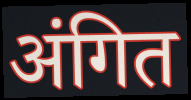
अंगित